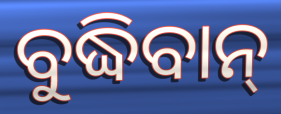
ବୁଦ୍ଧିବାନ୍